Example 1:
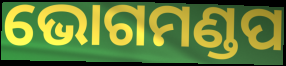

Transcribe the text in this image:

ଭୋଗମଣ୍ଡପ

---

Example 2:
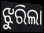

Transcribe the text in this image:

ଝୁରିଲା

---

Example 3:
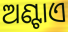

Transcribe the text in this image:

ଅଣ୍ଟାଏ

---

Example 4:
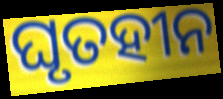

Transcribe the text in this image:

ଘୃତହୀନ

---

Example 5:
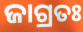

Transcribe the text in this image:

ଜାଗ୍ରତଃ